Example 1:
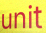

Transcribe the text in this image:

unit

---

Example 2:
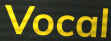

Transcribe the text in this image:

Vocal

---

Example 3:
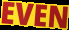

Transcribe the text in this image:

EVEN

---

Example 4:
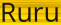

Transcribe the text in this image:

Ruru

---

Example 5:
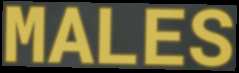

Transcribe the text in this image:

MALES